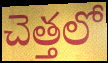
చెత్తలో